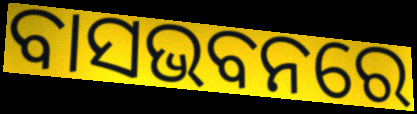
ବାସଭବନରେ